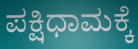
ಪಕ್ಷಿಧಾಮಕ್ಕೆ